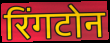
रिंगटोन